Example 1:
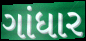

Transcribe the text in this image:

ગાંધાર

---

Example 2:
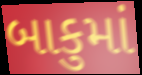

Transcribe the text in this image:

બાકુમાં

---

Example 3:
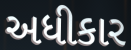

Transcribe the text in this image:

અધીકાર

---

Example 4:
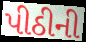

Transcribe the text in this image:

પીઠીની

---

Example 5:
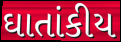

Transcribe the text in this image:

ઘાતાંકીય